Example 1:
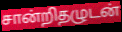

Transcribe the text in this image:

சான்றிதழுடன்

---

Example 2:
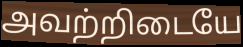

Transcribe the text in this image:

அவற்றிடையே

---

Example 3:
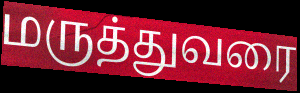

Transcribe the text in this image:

மருத்துவரை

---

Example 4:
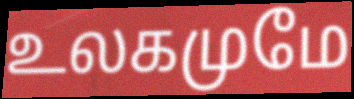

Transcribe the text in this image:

உலகமுமே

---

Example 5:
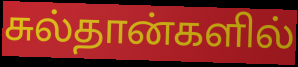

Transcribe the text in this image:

சுல்தான்களில்